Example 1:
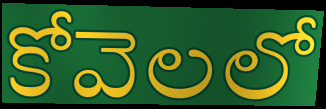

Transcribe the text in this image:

కోవెలలో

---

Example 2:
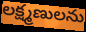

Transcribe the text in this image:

లక్ష్మణులను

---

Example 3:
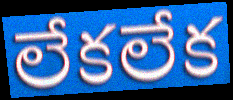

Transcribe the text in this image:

లేకలేక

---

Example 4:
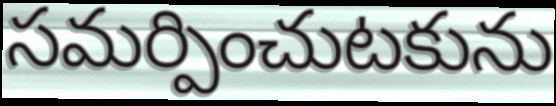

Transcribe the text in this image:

సమర్పించుటకును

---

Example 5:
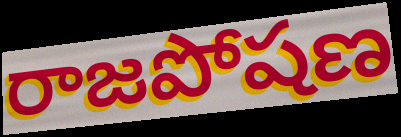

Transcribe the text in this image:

రాజపోషణ